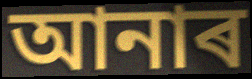
আনাৰ